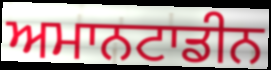
ਅਮਾਨਟਾਡੀਨ